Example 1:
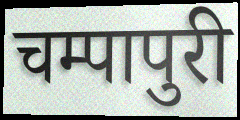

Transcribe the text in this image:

चम्पापुरी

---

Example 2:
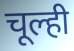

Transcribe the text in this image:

चूल्ही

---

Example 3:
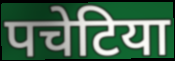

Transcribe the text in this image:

पचेटिया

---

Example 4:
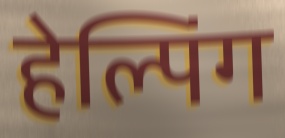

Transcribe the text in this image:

हेल्पिंग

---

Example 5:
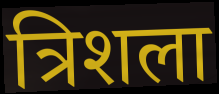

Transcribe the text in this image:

त्रिशला